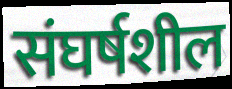
संघर्षशील